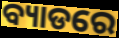
ବ୍ୟାଡରେ